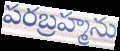
పరబ్రహ్మను